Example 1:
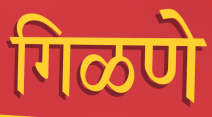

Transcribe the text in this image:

गिळणे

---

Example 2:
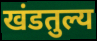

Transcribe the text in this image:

खंडतुल्य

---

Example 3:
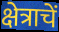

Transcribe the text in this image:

क्षेत्राचें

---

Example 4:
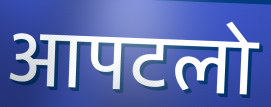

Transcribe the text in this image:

आपटलो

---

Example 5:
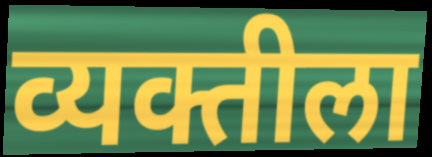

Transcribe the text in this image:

व्यक्तीला